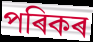
পৰিকৰ